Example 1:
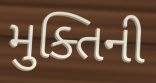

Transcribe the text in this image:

મુક્તિની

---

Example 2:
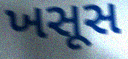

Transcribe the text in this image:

ખસૂસ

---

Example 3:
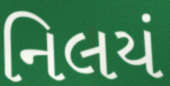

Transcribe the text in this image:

નિલયં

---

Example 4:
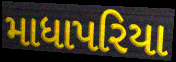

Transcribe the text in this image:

માધાપરિયા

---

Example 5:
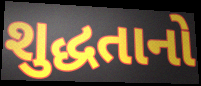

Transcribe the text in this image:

શુદ્ધતાનો